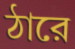
ঠারে